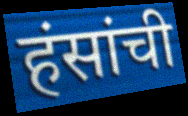
हंसांची